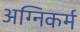
अग्निकर्म